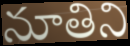
నూతిని